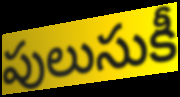
పులుసుకీ